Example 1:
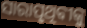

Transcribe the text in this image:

ସାରାପୃଥିବୀକୁ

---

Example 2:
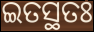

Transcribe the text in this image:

ଇତସ୍ଥତଃ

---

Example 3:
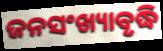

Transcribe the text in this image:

ଜନସଂଖ୍ୟାବୃଦ୍ଧି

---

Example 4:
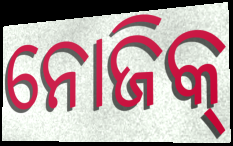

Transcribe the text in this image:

ନୋଜିକ୍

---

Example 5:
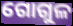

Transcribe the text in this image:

ଗୋଗୁଳ